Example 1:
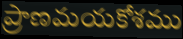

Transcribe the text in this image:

ప్రాణమయకోశము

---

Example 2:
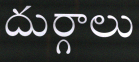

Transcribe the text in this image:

దుర్గాలు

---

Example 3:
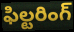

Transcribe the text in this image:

ఫిల్టరింగ్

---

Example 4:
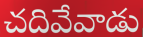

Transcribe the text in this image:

చదివేవాడు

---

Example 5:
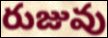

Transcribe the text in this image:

రుజువు